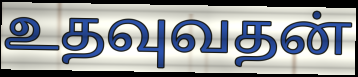
உதவுவதன்